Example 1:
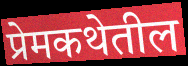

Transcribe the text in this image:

प्रेमकथेतील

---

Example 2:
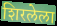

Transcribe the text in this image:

शिरलेला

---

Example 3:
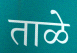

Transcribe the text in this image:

ताळे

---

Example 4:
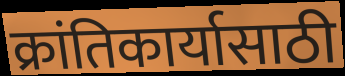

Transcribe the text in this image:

क्रांतिकार्यासाठी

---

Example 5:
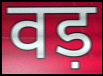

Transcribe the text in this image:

वड़